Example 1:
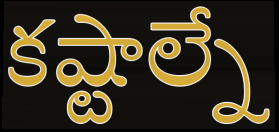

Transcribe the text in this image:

కష్టాల్నే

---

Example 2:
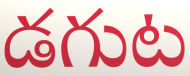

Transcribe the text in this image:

డగుట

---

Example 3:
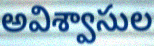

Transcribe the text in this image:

అవిశ్వాసుల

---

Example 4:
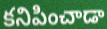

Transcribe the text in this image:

కనిపించాడా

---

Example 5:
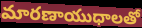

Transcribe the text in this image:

మారణాయుధాలతో